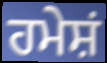
ਹਮੇਸ਼ਂ